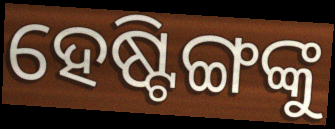
ହେଷ୍ଟିଙ୍ଗଙ୍କୁ